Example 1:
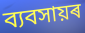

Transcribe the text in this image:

ব্যবসায়ৰ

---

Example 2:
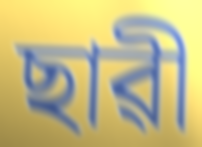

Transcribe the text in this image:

ছাৱী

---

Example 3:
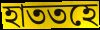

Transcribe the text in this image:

হাততহে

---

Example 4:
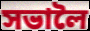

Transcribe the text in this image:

সভালৈ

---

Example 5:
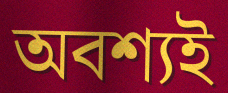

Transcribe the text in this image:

অবশ্যই